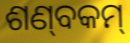
ଶଣ୍‌ବକମ୍